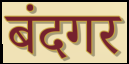
बंदगर